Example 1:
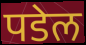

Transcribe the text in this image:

पडेल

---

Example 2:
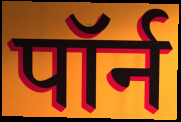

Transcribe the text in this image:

पॉर्न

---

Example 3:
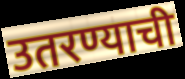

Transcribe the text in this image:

उतरण्याची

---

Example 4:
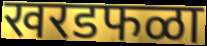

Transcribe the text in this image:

खरडफळा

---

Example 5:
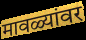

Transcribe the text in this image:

मावळ्यांवर